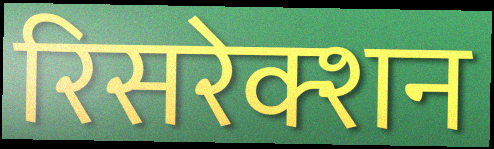
रिसरेक्शन